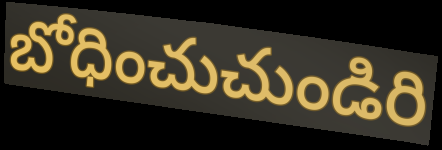
బోధించుచుండిరి